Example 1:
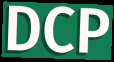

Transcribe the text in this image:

DCP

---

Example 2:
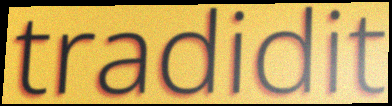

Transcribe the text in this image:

tradidit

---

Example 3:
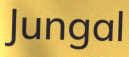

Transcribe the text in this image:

Jungal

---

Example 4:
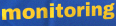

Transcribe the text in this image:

monitoring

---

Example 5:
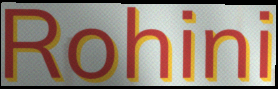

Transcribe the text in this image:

Rohini